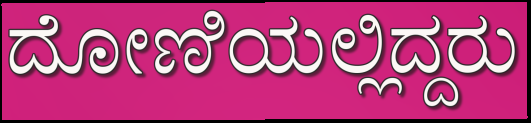
ದೋಣಿಯಲ್ಲಿದ್ದರು